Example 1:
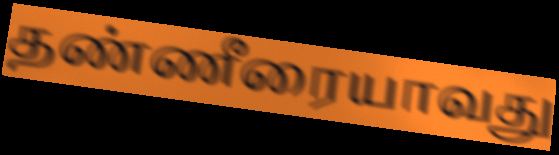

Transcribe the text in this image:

தண்ணீரையாவது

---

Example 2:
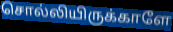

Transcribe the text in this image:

சொல்லியிருக்காளே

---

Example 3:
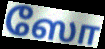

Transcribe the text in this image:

ஸோ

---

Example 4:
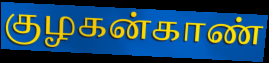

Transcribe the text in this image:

குழகன்காண்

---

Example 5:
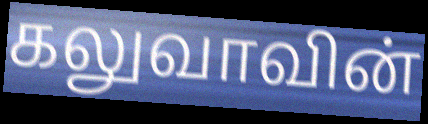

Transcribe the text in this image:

கலுவாவின்